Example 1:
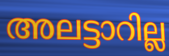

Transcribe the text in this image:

അലട്ടാറില്ല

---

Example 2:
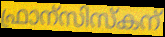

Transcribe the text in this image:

ഫ്രാന്സിസ്കന്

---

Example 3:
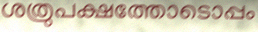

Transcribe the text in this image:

ശത്രുപക്ഷത്തോടൊപ്പം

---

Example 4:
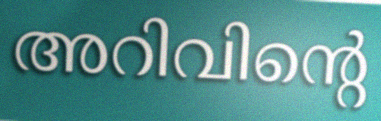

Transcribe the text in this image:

അറിവിന്റെ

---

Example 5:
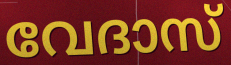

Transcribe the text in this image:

വേദാസ്